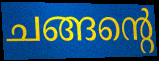
ചങ്ങന്റെ